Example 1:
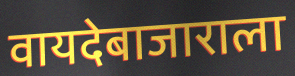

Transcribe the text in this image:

वायदेबाजाराला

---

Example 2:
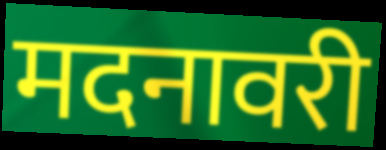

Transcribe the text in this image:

मदनावरी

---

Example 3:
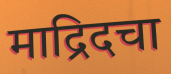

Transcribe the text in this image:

माद्रिदचा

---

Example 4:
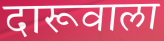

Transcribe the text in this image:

दारूवाला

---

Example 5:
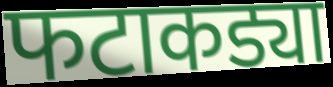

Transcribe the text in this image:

फटाकड्या